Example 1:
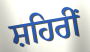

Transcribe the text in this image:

ਸ਼ਹਿਰੀਂ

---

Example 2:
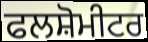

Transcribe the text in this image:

ਫਲਸ਼ੋਮੀਟਰ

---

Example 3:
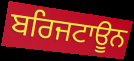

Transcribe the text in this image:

ਬਰਿਜਟਾਊਨ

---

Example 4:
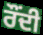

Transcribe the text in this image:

ਰੌਂਦੀ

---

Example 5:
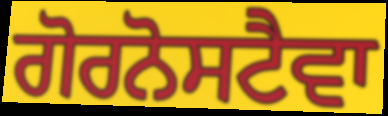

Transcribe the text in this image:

ਗੋਰਨੋਸਟੈਵਾ